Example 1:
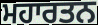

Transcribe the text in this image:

ਮਹਾਰਤਨ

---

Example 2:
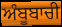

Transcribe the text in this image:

ਅੰਬੂਬਾਚੀ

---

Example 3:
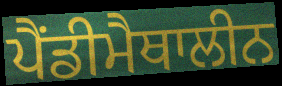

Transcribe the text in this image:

ਪੈਂਡੀਮੈਥਾਲੀਨ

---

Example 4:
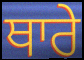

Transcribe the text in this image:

ਥਾਰੇ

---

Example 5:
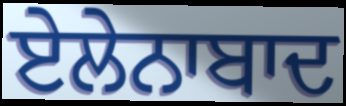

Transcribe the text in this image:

ਏਲੇਨਾਬਾਦ